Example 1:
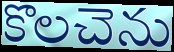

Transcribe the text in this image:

కొలచెను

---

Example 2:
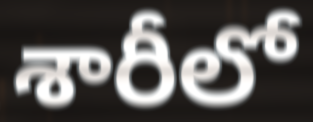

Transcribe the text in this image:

శారీలో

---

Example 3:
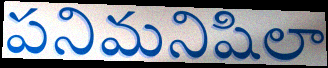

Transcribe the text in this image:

పనిమనిషిలా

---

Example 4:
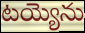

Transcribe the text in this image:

టయ్యెను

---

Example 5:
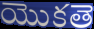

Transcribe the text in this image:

యొకతె